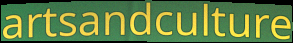
artsandculture